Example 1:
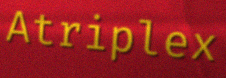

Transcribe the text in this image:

Atriplex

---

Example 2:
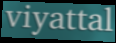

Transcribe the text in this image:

viyattal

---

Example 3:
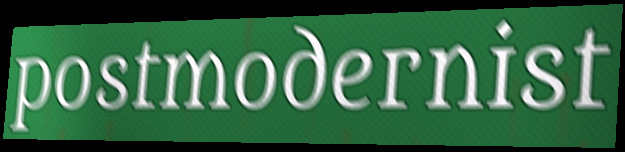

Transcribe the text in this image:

postmodernist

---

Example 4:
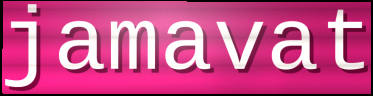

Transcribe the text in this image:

jamavat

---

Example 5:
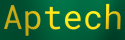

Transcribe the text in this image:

Aptech